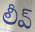
లీవ్